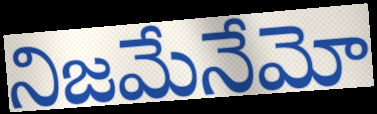
నిజమేనేమో